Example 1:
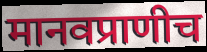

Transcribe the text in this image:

मानवप्राणीच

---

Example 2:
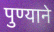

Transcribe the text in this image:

पुण्याने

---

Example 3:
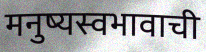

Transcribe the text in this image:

मनुष्यस्वभावाची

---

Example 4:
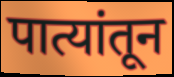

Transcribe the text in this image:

पात्यांतून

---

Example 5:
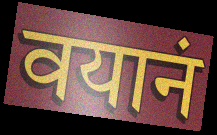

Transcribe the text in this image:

वयानं